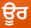
ਊਰ